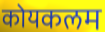
कोयकलम